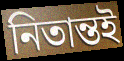
নিতান্তই